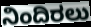
ನಿಂದಿರಲು